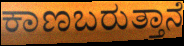
ಕಾಣಬರುತ್ತಾನೆ